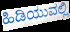
ಹಿಡಿಯುವಲ್ಲಿ